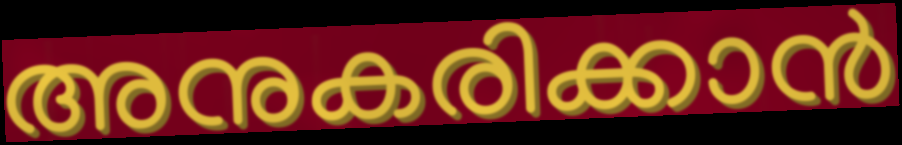
അനുകരിക്കാൻ